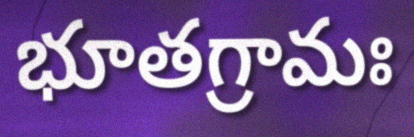
భూతగ్రామః